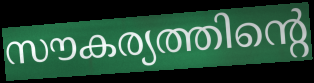
സൗകര്യത്തിന്റെ